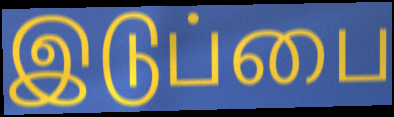
இடுப்பை